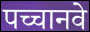
पच्चानवे